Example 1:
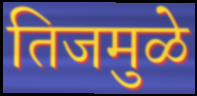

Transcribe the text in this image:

तिजमुळे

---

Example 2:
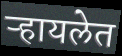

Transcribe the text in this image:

ऱ्हायलेत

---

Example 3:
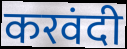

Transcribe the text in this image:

करवंदी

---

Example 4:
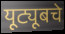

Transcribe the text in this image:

यूट्यूबचे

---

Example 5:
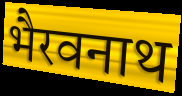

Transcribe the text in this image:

भैरवनाथ